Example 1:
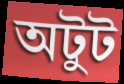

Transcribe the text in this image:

অটুট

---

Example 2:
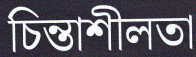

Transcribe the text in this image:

চিন্তাশীলতা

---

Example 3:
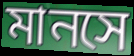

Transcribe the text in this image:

মানসে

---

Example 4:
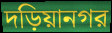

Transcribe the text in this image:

দড়িয়ানগর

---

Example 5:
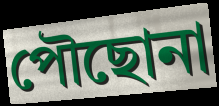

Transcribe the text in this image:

পৌছোনা